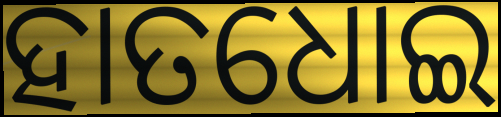
ହାତଧୋଇ